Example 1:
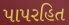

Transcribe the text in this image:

પાપરહિત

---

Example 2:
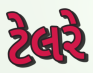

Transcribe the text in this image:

ટેલરે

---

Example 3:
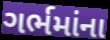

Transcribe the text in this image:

ગર્ભમાંના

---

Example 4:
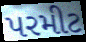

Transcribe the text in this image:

પરમીટ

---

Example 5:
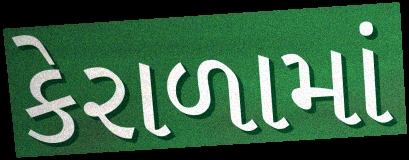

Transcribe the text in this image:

કેરાળામાં